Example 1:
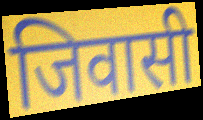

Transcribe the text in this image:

जिवासी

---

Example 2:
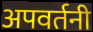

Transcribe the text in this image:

अपवर्तनी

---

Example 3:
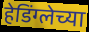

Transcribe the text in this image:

हेडिंग्लेच्या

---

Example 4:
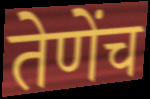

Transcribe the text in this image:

तेणेंच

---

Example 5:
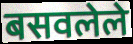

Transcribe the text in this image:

बसवलेले